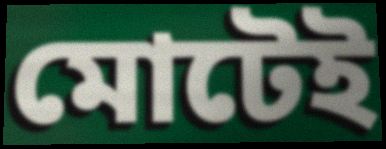
মোটেই